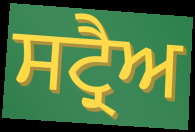
ਸਟ੍ਰੈਅ